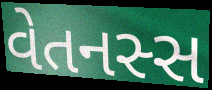
વેતનસ્સ